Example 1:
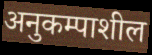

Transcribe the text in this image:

अनुकम्पाशील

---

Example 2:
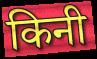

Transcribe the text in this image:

किनी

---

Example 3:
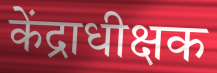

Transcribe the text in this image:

केंद्राधीक्षक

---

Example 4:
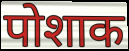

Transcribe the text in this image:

पोशाक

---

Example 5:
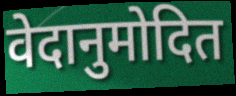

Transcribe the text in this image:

वेदानुमोदित